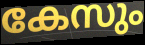
കേസും